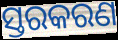
ସ୍ତରକରଣ